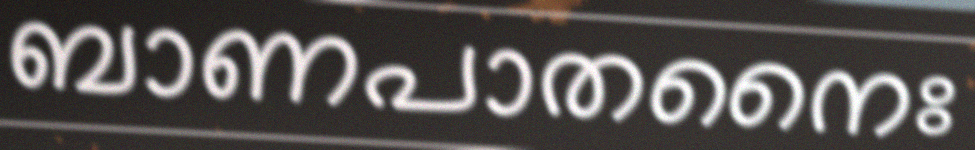
ബാണപാതനൈഃ